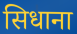
सिधाना